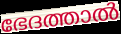
ഭേദത്താൽ